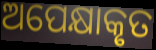
ଅପେକ୍ଷାକୃତ